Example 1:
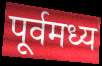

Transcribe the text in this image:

पूर्वमध्य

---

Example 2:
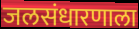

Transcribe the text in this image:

जलसंधारणाला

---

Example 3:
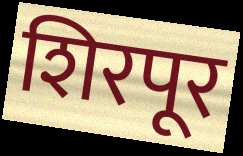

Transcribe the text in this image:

शिरपूर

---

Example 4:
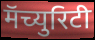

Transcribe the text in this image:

मॅच्युरिटी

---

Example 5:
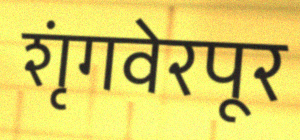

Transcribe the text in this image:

शृंगवेरपूर